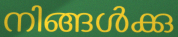
നിങ്ങൾക്കു